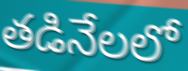
తడినేలలో